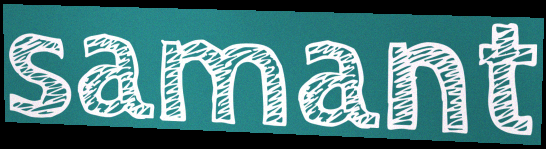
samant